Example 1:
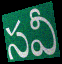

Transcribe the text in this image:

సవీ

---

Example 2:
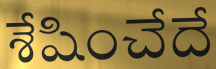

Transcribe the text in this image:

శేషించేదే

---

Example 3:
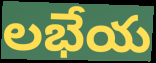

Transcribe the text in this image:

లభేయ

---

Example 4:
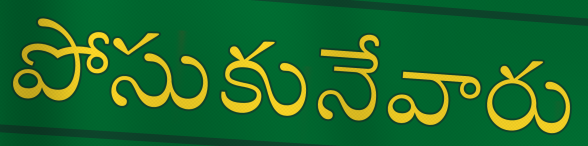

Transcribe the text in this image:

పోసుకునేవారు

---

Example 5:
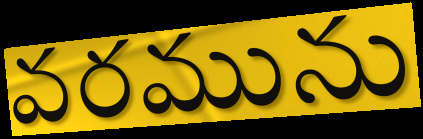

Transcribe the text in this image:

వరమును